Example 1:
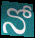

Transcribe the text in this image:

నో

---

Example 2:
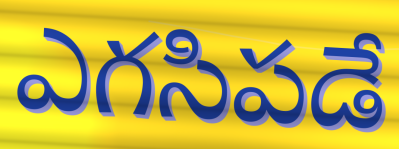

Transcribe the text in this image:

ఎగసిపడే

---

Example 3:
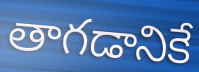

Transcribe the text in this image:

తాగడానికే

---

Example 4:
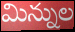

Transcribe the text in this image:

మిన్నుల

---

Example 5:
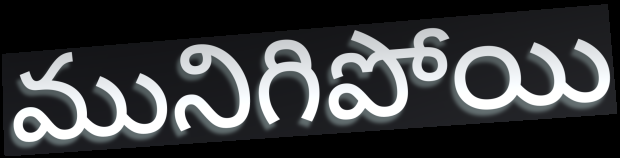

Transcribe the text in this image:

మునిగిపోయి